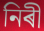
নিৰী